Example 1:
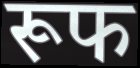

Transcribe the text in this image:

रूफ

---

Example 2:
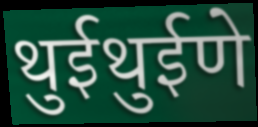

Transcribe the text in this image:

थुईथुईणे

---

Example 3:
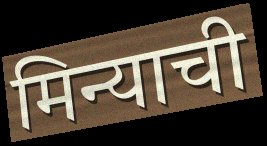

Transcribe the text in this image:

मिन्याची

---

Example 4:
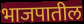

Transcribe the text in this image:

भाजपातील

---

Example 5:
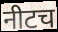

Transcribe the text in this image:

नीटच